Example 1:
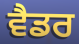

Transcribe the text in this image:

ਵੈਡਰ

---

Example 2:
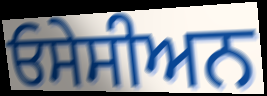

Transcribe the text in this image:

ਓਸੇਸੀਅਨ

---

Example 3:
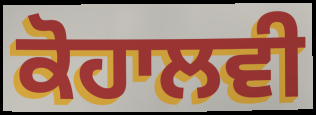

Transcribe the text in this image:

ਕੋਹਾਲਵੀ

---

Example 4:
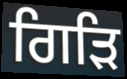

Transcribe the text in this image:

ਗਿੜਿ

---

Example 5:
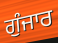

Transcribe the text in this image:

ਗੁੰਜਾਰ